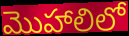
మొహాలిలో